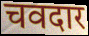
चवदार